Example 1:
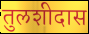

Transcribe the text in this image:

तुलशीदास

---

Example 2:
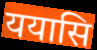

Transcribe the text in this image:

ययासि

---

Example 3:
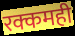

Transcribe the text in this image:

रक्कमही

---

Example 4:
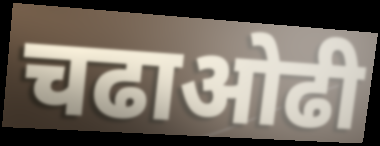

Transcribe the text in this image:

चढाओढी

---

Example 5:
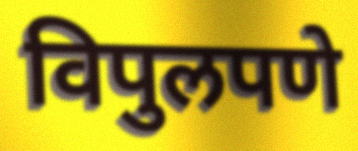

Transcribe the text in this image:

विपुलपणे